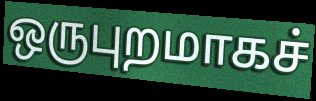
ஒருபுறமாகச்